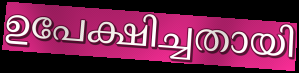
ഉപേക്ഷിച്ചതായി